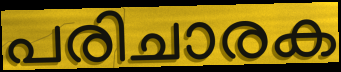
പരിചാരക